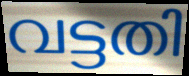
വട്ടതി